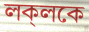
লক্‌লকে